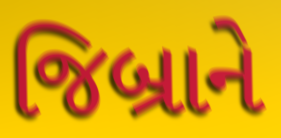
જિબ્રાને